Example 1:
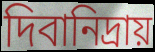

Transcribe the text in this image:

দিবানিদ্রায়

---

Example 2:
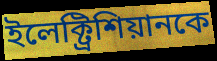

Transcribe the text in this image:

ইলেক্ট্রিশিয়ানকে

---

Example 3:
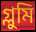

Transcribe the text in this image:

গ্লুমি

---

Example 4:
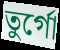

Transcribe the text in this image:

তুর্গো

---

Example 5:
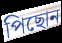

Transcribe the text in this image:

পিছোন